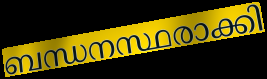
ബന്ധനസ്ഥരാക്കി